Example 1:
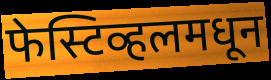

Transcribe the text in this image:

फेस्टिव्हलमधून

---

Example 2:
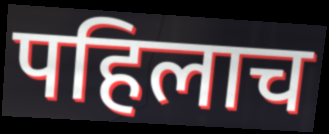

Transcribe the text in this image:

पहिलाच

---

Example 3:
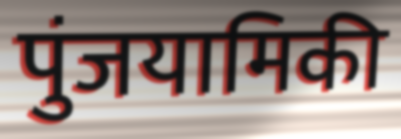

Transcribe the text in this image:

पुंजयामिकी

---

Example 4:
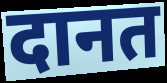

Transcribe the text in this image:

दानत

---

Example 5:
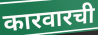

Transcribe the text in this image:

कारवारची